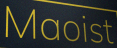
Maoist